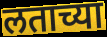
लताच्या